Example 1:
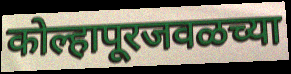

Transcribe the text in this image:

कोल्हापूरजवळच्या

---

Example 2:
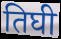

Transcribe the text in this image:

तिघी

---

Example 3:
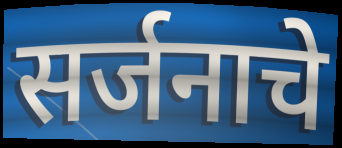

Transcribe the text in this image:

सर्जनाचे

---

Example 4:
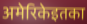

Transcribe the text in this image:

अमेरिकेइतका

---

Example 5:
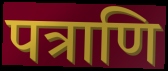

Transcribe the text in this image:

पत्राणि